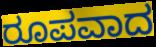
ರೂಪವಾದ